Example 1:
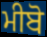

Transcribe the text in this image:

ਮੀਬੋ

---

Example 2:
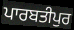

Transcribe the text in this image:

ਪਾਰਬਤੀਪੁਰ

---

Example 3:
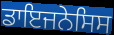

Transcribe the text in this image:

ਡਾਇਜਨੇਸਿਸ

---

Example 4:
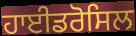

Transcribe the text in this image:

ਹਾਈਡਰੋਸਿਲ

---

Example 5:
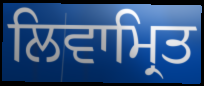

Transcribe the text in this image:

ਲਿਵਾਮ੍ਰਿਤ